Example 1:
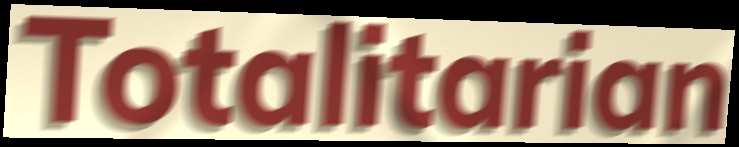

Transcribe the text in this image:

Totalitarian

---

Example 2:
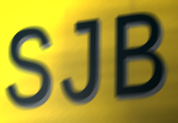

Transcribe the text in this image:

SJB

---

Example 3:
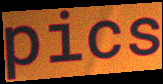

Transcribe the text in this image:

pics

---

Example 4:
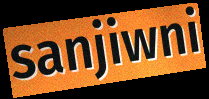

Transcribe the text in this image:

sanjiwni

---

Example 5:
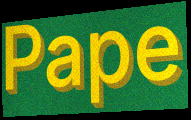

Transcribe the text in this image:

Pape